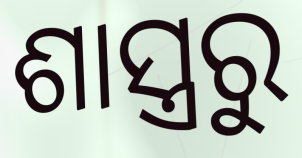
ଶାସ୍ତ୍ରରୁ